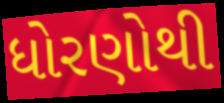
ધોરણોથી